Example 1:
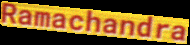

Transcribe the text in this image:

Ramachandra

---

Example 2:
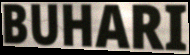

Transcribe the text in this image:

BUHARI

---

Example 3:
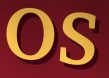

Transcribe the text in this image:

os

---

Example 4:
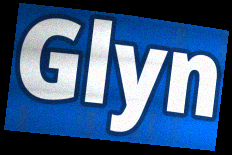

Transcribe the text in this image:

Glyn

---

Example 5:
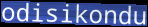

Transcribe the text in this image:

odisikondu